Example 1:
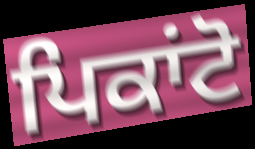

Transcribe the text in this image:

ਪਿਕਾਂਟੋ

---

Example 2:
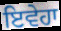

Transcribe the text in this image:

ਇਵੇਹਾ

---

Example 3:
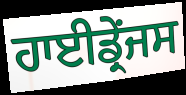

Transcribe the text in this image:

ਹਾਈਡ੍ਰੇਂਜਸ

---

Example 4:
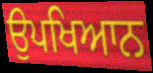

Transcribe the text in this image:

ਉਪਖਿਆਨ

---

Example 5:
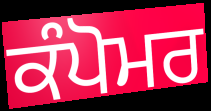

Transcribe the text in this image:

ਕੰਪੋਮਰ